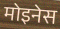
मोइनेस